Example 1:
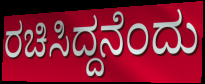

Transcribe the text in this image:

ರಚಿಸಿದ್ದನೆಂದು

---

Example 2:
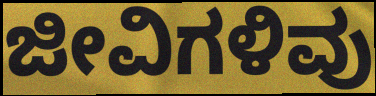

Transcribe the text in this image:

ಜೀವಿಗಳಿವು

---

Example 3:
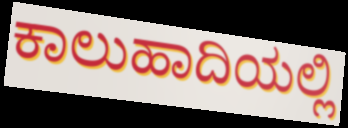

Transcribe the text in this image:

ಕಾಲುಹಾದಿಯಲ್ಲಿ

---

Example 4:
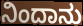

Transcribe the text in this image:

ನಿಂದಾನು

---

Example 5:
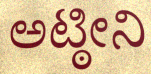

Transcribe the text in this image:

ಅಟ್ಠೀನಿ